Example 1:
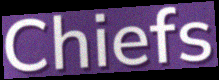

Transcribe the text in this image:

Chiefs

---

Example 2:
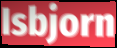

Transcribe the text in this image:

Isbjorn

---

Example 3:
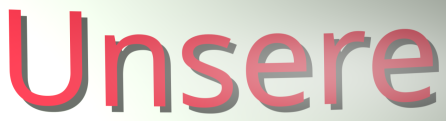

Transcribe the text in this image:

Unsere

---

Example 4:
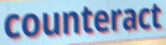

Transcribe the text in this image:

counteract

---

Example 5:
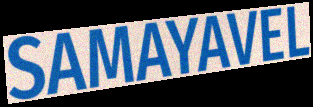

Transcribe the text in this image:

SAMAYAVEL